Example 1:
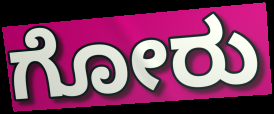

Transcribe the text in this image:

ಗೋರು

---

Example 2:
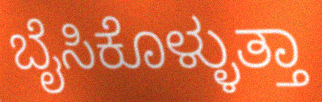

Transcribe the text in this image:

ಬೈಸಿಕೊಳ್ಳುತ್ತಾ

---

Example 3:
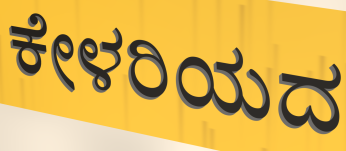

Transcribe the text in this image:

ಕೇಳರಿಯದ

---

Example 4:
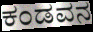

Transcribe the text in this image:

ಕಂಡವನ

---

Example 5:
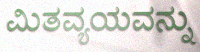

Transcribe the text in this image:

ಮಿತವ್ಯಯವನ್ನು